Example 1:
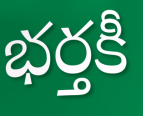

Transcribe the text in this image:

భర్తకీ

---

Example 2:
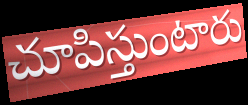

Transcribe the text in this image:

చూపిస్తుంటారు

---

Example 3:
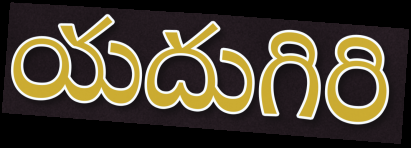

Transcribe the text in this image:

యదుగిరి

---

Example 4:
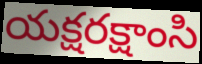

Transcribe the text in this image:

యక్షరక్షాంసి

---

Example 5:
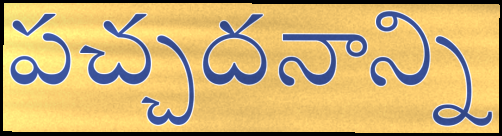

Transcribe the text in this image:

పచ్చదనాన్ని